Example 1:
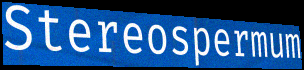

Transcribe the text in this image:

Stereospermum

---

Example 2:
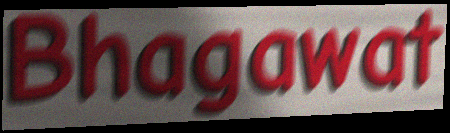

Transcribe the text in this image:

Bhagawat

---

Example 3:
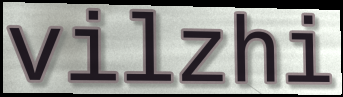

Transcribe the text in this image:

vilzhi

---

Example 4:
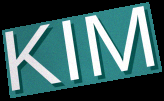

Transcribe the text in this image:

KIM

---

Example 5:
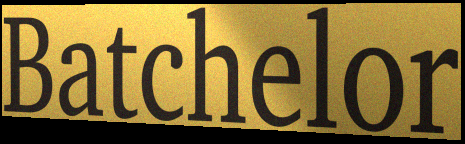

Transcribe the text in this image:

Batchelor